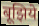
बूझिये